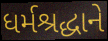
ધર્મશ્રદ્ધાને